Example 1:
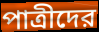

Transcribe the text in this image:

পাত্রীদের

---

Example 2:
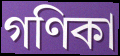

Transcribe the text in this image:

গণিকা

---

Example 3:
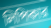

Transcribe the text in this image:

লিপিকার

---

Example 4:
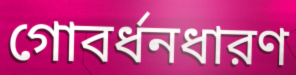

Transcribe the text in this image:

গোবর্ধনধারণ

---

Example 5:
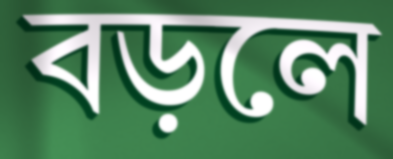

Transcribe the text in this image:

বড়লে